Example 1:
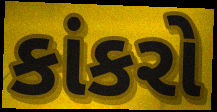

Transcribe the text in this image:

કાંકરો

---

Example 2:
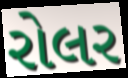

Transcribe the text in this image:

રોલર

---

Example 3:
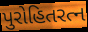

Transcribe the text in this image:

પુરોહિતરત્ન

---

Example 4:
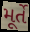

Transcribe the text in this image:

મૂર્તે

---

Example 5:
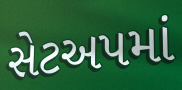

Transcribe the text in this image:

સેટઅપમાં